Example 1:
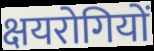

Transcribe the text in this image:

क्षयरोगियों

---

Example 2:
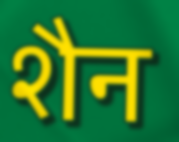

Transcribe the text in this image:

शैन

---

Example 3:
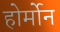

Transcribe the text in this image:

होर्मोन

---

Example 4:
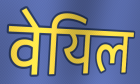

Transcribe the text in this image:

वेयिल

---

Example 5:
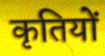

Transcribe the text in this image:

कृतियों